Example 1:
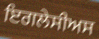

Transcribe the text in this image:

ਇਗਲੇਸੀਅਸ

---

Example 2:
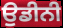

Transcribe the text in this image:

ਉਡੀਨੀ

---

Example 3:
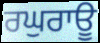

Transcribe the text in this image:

ਰਘੁਰਾਊ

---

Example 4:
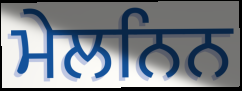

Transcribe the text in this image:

ਮੇਲਨਿਨ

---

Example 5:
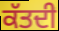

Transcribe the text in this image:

ਕੱਤਦੀ